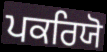
ਪਕਰਿਯੋ